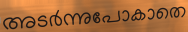
അടർന്നുപോകാതെ